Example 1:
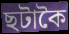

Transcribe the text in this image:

ছটাকৈ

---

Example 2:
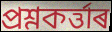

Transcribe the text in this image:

প্ৰশ্নকৰ্ত্তাৰ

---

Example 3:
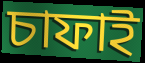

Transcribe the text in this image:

চাফাই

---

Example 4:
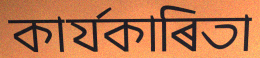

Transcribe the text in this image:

কাৰ্যকাৰিতা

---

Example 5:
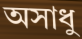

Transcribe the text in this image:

অসাধু